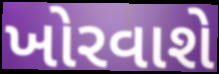
ખોરવાશે